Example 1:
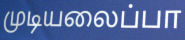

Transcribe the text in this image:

முடியலைப்பா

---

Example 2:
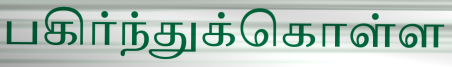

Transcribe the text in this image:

பகிர்ந்துக்கொள்ள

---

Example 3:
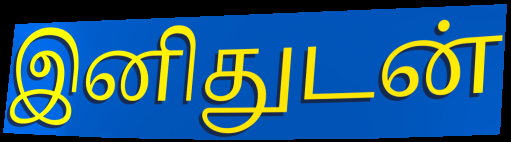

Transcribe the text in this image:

இனிதுடன்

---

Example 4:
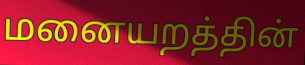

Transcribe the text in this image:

மனையறத்தின்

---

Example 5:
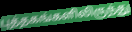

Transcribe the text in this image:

புத்தகங்களிலிருந்து